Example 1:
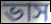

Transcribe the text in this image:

ভাস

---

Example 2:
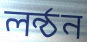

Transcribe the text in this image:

লন্ঠন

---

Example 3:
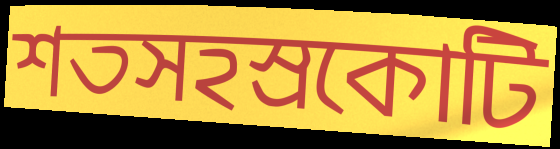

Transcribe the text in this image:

শতসহস্রকোটি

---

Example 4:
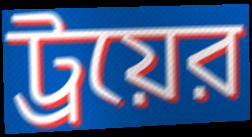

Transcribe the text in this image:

ট্রয়ের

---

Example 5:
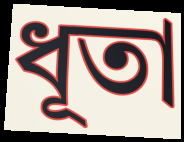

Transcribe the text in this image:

ধূতা